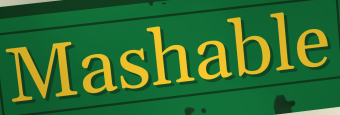
Mashable